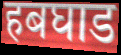
हबघाड